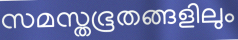
സമസ്തഭൂതങ്ങളിലും